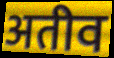
अतीव